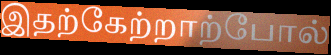
இதற்கேற்றாற்போல்